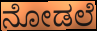
ನೋಡಲೆ